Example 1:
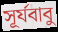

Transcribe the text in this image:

সূর্যবাবু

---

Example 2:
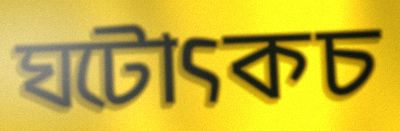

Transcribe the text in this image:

ঘটোৎকচ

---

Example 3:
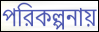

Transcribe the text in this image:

পরিকল্পনায়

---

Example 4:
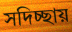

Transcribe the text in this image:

সদিচ্ছায়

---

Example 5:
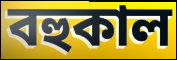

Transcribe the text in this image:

বহুকাল